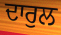
ਦਾਰੁਲ